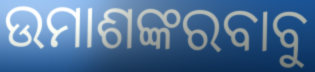
ଉମାଶଙ୍କରବାବୁ